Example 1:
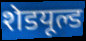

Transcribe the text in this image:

शेडयूल्ड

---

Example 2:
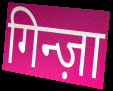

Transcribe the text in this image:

गिन्ज़ा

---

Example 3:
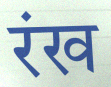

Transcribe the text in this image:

रंख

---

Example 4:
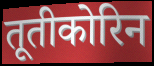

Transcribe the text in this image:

तूतीकोरिन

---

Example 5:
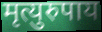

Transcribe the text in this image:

मृत्युरुपाय